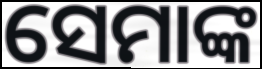
ସେମାଙ୍କ